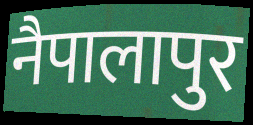
नैपालापुर